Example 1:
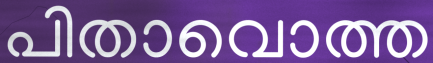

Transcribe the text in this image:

പിതാവൊത്ത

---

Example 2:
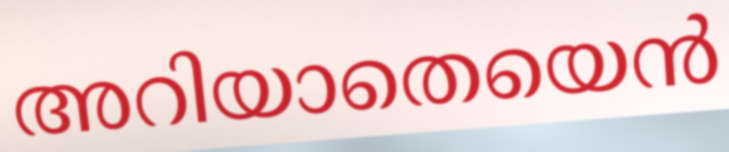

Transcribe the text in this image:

അറിയാതെയെൻ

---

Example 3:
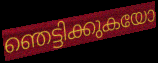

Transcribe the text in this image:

ഞെട്ടിക്കുകയോ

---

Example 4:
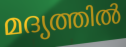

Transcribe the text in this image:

മദ്യത്തിൽ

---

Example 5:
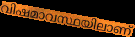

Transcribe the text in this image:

വിഷമാവസ്ഥയിലാണ്